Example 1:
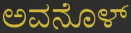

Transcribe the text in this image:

ಅವನೊಳ್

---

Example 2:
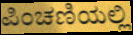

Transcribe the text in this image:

ಪಿಂಚಣಿಯಲ್ಲಿ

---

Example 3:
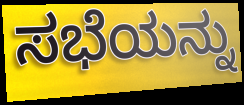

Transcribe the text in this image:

ಸಭೆಯನ್ನು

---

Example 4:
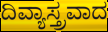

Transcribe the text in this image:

ದಿವ್ಯಾಸ್ತ್ರವಾದ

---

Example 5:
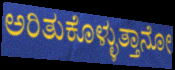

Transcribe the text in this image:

ಅರಿತುಕೊಳ್ಳುತ್ತಾನೋ